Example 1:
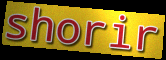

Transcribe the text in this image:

shorir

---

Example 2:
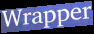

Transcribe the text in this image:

Wrapper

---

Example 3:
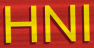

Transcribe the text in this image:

HNI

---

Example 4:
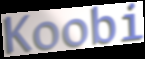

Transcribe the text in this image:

Koobi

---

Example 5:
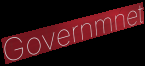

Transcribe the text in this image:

Governmnet